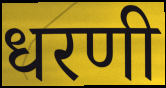
धरणी